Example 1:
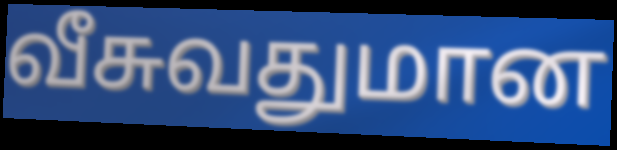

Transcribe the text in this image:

வீசுவதுமான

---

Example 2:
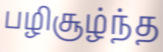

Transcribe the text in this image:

பழிசூழ்ந்த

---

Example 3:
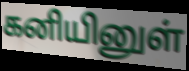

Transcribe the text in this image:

கனியினுள்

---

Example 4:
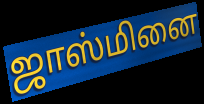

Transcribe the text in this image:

ஜாஸ்மினை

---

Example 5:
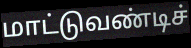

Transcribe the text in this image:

மாட்டுவண்டிச்